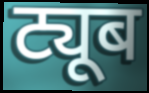
ट्यूब